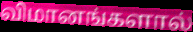
விமானங்களால்